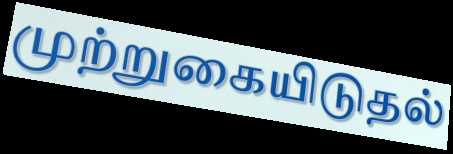
முற்றுகையிடுதல்